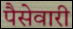
पैसेवारी